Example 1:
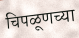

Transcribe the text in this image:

चिपळूणच्या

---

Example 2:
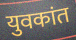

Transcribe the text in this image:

युवकांत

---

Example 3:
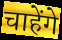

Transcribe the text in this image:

चाहेंगे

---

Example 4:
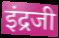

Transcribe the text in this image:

इंद्रजी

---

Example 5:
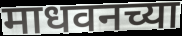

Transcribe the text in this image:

माधवनच्या